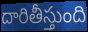
దారితీస్తుంది